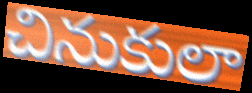
చినుకులా